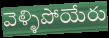
వెళ్ళిపోయేరు